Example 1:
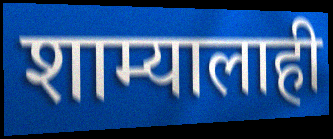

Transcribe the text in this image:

शाम्यालाही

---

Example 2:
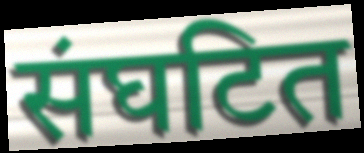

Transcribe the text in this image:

संघटित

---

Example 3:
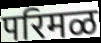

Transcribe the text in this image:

परिमळ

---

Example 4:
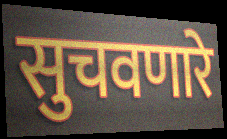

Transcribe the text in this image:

सुचवणारे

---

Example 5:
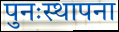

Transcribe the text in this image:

पुनःस्थापना